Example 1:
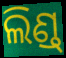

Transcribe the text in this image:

ଲିଣ୍ଡ୍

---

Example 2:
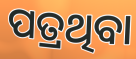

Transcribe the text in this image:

ପତ୍ରଥିବା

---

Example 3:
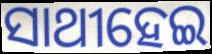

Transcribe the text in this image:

ସାଥୀହେଇ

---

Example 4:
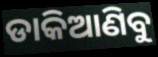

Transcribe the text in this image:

ଡାକିଆଣିବୁ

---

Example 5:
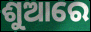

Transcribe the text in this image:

ଶୁଆରେ